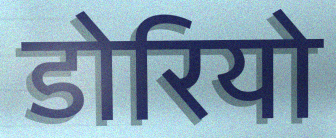
डोरियो